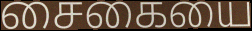
சைகையை